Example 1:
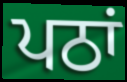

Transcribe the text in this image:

ਪਠਾਂ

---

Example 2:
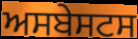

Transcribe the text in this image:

ਅਸਬੇਸਟਸ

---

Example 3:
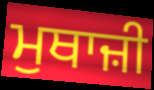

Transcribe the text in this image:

ਮੁਥਾਜ਼ੀ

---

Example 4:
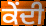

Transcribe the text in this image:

ਕੇਂਦੀ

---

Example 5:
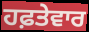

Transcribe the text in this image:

ਹਫ਼ਤੇਵਾਰ